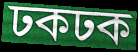
ঢকঢক